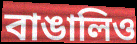
বাঙালিও